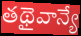
తథైవాన్యే